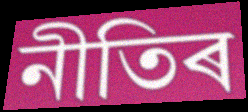
নীতিৰ